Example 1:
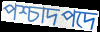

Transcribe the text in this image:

পশ্চাদপদে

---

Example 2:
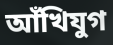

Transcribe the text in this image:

আঁখিযুগ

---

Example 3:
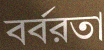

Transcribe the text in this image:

বর্বরতা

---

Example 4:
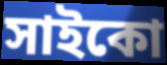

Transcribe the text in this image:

সাইকো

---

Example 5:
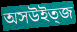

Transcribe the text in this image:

অসউইত্জ